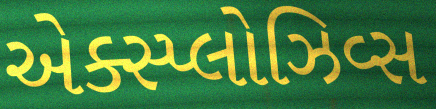
એક્સ્પ્લોઝિવ્સ